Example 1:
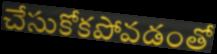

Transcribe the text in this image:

చేసుకోకపోవడంతో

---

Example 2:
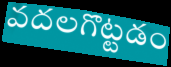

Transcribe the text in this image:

వదలగొట్టడం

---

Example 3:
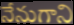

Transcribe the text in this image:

నేనుగాని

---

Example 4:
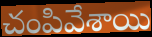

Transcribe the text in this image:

చంపివేశాయి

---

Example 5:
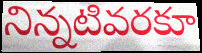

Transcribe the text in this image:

నిన్నటివరకూ